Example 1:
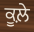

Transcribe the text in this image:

ਕੂਲ਼ੇ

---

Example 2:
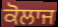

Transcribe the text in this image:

ਕੋਲਾਜ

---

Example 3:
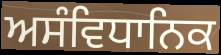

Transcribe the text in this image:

ਅਸੰਵਿਧਾਨਿਕ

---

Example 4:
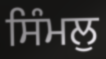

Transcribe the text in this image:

ਸਿੰਮਲੁ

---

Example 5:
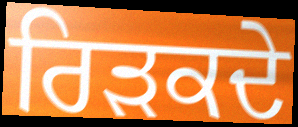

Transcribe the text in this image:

ਰਿੜਕਦੇ